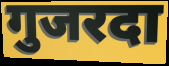
गुजरदा